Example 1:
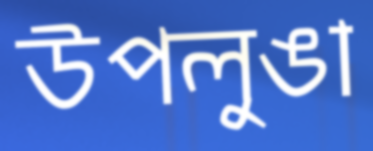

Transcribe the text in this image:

উপলুঙা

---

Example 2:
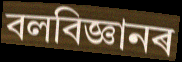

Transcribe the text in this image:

বলবিজ্ঞানৰ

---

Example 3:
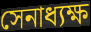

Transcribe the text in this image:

সেনাধ্যক্ষ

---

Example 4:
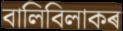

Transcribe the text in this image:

বালিবিলাকৰ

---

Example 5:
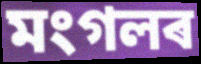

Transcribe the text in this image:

মংগলৰ